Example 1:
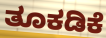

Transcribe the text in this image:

ತೂಕಡಿಕೆ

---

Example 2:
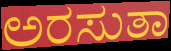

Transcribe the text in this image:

ಅರಸುತಾ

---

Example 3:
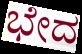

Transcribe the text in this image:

ಭೇದ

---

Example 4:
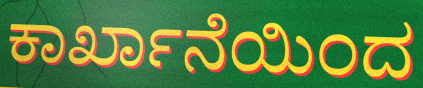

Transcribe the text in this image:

ಕಾರ್ಖಾನೆಯಿಂದ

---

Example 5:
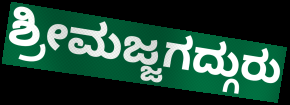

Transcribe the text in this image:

ಶ್ರೀಮಜ್ಜಗದ್ಗುರು